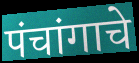
पंचांगाचे